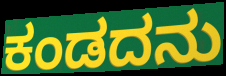
ಕಂಡದನು